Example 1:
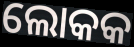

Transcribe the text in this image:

ଲୋକକ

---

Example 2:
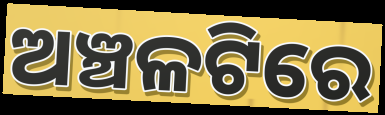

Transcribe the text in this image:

ଅଞ୍ଚଳଟିରେ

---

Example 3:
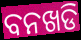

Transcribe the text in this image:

ବନଖଡି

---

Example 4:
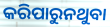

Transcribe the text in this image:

କରିପାରୁନଥୁବା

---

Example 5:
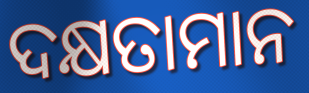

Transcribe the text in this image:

ଦକ୍ଷତାମାନ